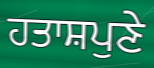
ਹਤਾਸ਼ਪੁਣੇ